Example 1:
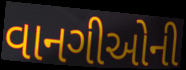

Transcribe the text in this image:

વાનગીઓની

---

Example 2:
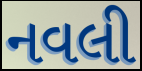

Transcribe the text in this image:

નવલી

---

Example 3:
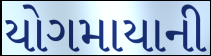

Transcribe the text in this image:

યોગમાયાની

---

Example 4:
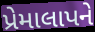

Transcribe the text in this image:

પ્રેમાલાપને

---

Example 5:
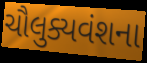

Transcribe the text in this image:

ચૌલુક્યવંશના